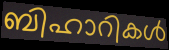
ബിഹാറികൾ